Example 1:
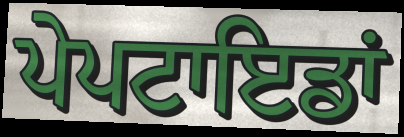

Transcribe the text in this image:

ਪੇਪਟਾਇਡਾਂ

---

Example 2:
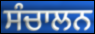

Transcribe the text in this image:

ਸੰਚਾਲਨ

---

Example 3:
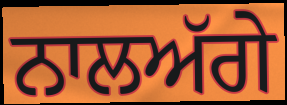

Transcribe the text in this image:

ਨਾਲਅੱਗੇ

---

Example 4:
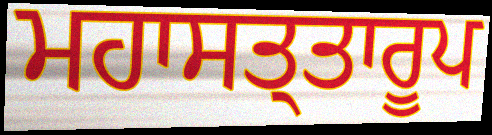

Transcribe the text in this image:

ਮਹਾਸਤ੍ਤਾਰੂਪ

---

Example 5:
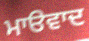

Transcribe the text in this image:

ਮਾੳਵਾਦ